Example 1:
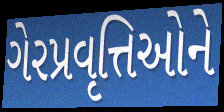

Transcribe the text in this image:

ગેરપ્રવૃત્તિઓને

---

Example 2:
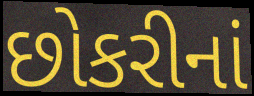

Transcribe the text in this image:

છોકરીનાં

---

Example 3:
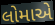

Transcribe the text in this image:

લોમાએ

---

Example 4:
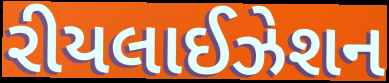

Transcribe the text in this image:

રીયલાઈઝેશન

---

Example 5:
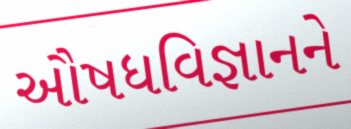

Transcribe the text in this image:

ઔષધવિજ્ઞાનને